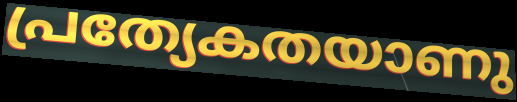
പ്രത്യേകതയാണു